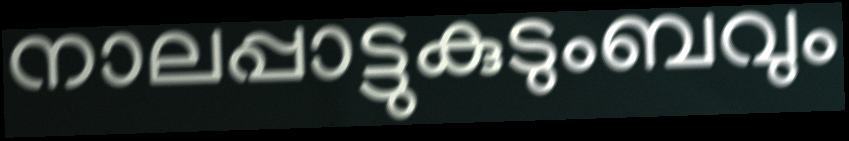
നാലപ്പാട്ടുകുടുംബവും